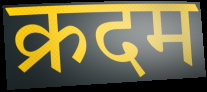
क्रदम